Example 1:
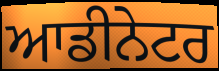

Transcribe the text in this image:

ਆਡੀਨੇਟਰ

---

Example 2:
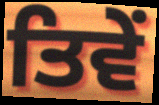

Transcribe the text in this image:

ਤਿਵੇਂ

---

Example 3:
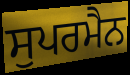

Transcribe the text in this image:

ਸੁਪਰਮੈਨ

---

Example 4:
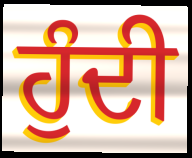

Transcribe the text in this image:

ਹੁੰਦੀ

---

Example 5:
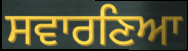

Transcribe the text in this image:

ਸਵਾਰਣਿਆ